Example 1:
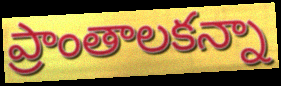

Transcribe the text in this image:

ప్రాంతాలకన్నా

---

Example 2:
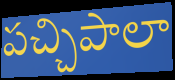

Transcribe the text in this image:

పచ్చిపాలా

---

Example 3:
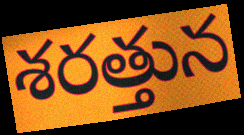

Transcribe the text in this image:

శరత్తున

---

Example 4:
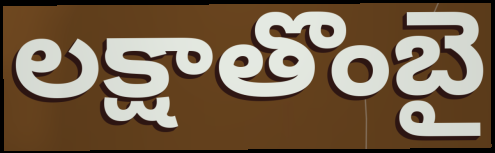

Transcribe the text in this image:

లక్షాతొంబై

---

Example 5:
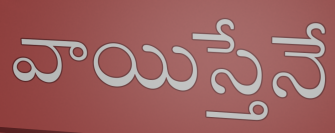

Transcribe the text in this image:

వాయిస్తేనే